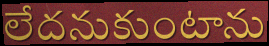
లేదనుకుంటాను